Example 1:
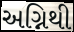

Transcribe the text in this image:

અગ્નિથી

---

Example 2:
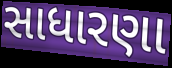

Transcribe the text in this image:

સાધારણા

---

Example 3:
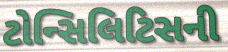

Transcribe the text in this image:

ટોન્સિલિટિસની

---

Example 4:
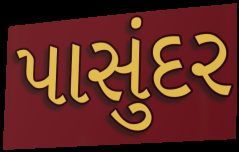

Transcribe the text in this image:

પાસુંદર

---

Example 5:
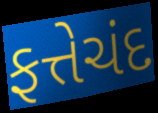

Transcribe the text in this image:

ફત્તેચંદ